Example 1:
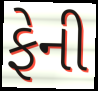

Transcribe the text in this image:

ફેની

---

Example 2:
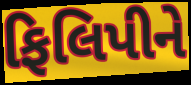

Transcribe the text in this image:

ફિલિપીને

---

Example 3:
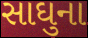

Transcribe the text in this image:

સાઘુના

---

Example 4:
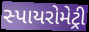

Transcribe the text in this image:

સ્પાયરોમેટ્રી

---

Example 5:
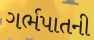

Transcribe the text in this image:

ગર્ભપાતની